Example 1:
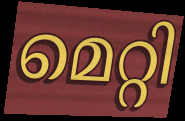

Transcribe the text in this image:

മെറ്റി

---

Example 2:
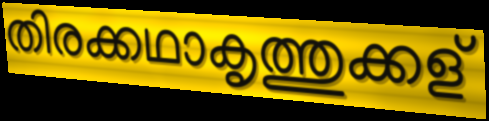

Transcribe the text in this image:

തിരക്കഥാകൃത്തുക്കള്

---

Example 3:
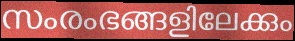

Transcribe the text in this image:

സംരംഭങ്ങളിലേക്കും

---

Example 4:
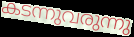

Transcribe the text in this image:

കടന്നുവരുന്നു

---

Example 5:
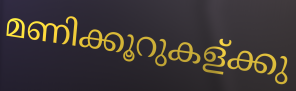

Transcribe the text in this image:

മണിക്കൂറുകള്ക്കു